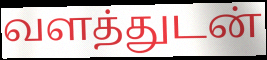
வளத்துடன்